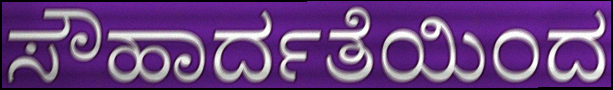
ಸೌಹಾರ್ದತೆಯಿಂದ